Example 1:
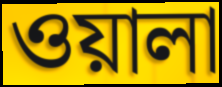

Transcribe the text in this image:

ওয়ালা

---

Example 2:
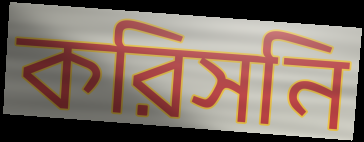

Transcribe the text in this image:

করিসনি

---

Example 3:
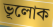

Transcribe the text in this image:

ভূলোক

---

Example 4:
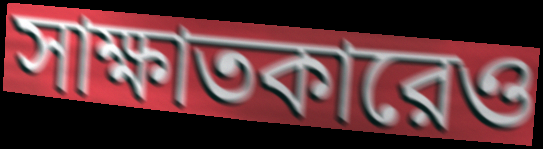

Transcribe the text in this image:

সাক্ষাতকারেও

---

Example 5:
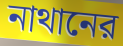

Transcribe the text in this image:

নাথানের